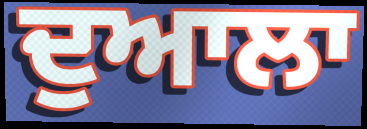
ਦੁਆਲਾ